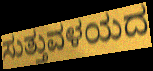
ಸುತ್ತುವಳಯದ